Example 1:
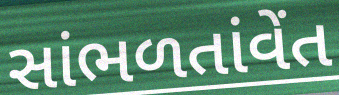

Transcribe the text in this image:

સાંભળતાંવેંત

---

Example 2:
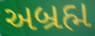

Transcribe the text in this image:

અબ્રહ્મ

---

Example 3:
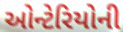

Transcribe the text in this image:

ઓન્ટેરિયોની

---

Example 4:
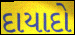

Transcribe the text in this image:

દાયાદો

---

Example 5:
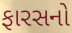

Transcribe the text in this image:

ફારસનો